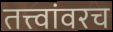
तत्त्वांवरच